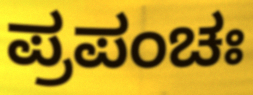
ಪ್ರಪಂಚಃ